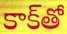
కాక్‌తో